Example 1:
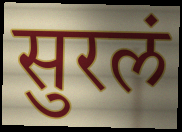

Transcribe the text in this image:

सुरलं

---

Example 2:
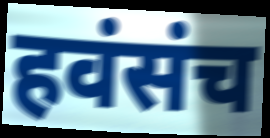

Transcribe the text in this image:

हवंसंच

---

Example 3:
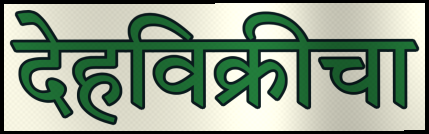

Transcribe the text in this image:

देहविक्रीचा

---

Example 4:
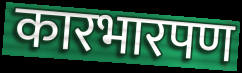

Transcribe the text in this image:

कारभारपण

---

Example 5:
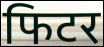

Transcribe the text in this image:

फिटर